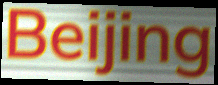
Beijing